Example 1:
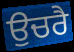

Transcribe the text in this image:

ਉਚਰੈ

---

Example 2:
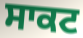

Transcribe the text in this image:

ਸਾਕਟ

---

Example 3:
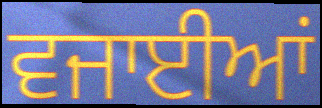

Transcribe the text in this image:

ਵਜਾਈਆਂ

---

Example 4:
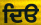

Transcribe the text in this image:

ਦਿੳ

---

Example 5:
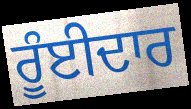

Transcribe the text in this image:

ਰੂੰਈਦਾਰ